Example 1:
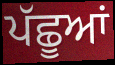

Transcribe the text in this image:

ਪੱਛੂਆਂ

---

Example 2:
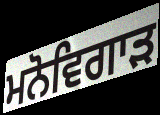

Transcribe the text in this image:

ਮਨੋਵਿਗਾੜ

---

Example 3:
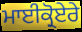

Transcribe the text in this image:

ਮਾਈਕ੍ਰੋਏਰੇ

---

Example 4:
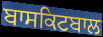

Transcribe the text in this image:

ਬਾਸਕਿਟਬਾਲ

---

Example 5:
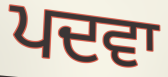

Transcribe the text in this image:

ਪਦਵਾ